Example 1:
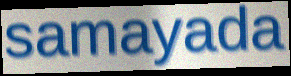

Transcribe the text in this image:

samayada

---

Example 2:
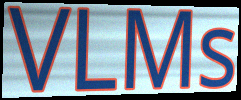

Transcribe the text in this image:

VLMs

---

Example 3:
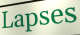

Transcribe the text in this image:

Lapses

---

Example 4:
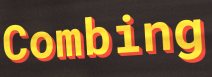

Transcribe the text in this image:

Combing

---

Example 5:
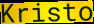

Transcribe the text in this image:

Kristo